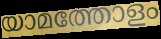
യാമത്തോളം